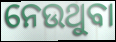
ନେଉଥୁବା